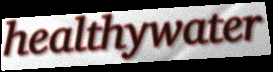
healthywater